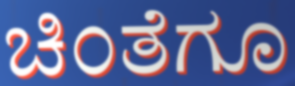
ಚಿಂತೆಗೂ